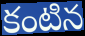
కంటిన